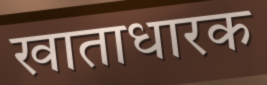
खाताधारक